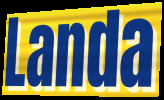
Landa